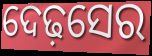
ଦେଢ଼ସେର